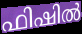
ഫിഷിൽ